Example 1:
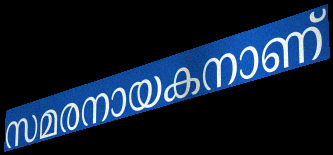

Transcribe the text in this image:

സമരനായകനാണ്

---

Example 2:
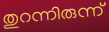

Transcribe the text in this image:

തുറന്നിരുന്ന്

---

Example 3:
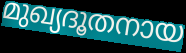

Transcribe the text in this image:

മുഖ്യദൂതനായ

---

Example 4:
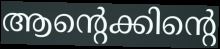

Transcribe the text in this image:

ആന്റെക്കിന്റെ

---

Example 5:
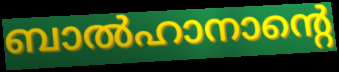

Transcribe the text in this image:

ബാൽഹാനാന്റെ